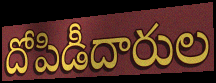
దోపిడీదారుల